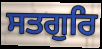
ਸਤਗੁਰਿ